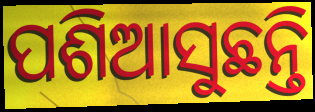
ପଶିଆସୁଛନ୍ତି